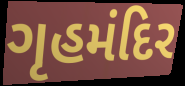
ગૃહમંદિર